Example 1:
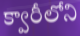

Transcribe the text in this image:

క్వారీలోని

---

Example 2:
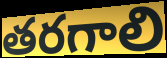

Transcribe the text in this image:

తరగాలి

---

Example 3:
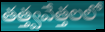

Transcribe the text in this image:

తత్త్వవేత్తలలో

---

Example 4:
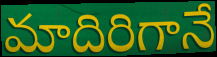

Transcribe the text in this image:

మాదిరిగానే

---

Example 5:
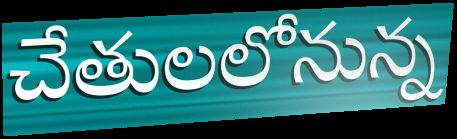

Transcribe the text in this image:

చేతులలోనున్న